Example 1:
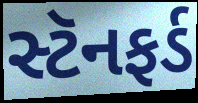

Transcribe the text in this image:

સ્ટૅનફર્ડ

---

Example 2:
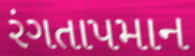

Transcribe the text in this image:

રંગતાપમાન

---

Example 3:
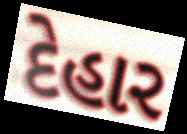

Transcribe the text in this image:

દેહાર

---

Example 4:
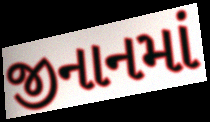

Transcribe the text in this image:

જીનાનમાં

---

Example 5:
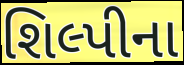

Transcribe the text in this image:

શિલ્પીના